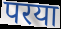
परया